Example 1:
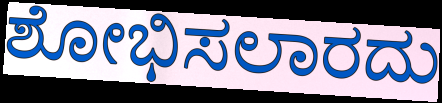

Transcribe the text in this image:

ಶೋಭಿಸಲಾರದು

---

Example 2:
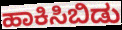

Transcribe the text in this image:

ಹಾಕಿಸಿಬಿಡು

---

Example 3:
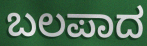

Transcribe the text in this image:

ಬಲಪಾದ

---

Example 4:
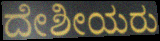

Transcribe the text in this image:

ದೇಶೀಯರು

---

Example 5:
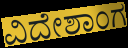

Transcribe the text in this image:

ವಿದೇಶಾಂಗ